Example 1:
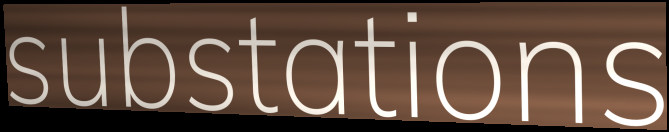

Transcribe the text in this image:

substations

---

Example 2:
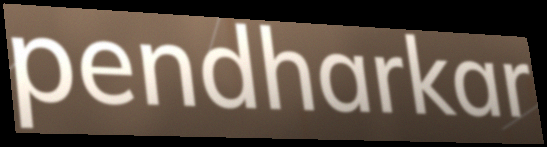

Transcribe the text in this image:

pendharkar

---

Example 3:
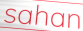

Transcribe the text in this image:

sahan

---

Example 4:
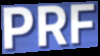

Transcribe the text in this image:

PRF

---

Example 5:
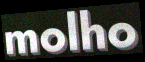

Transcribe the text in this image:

molho